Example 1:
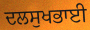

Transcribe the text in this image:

ਦਲਸੁਖਭਾਈ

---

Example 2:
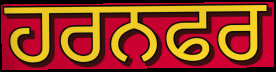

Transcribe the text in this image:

ਹਰਨਫਰ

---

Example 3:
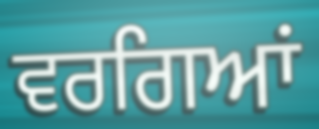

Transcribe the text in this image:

ਵਰਗਿਆਂ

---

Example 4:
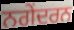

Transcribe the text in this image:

ਨਗੇਂਦਰਨ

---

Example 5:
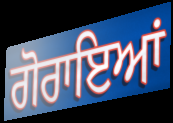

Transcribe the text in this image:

ਗੋਰਾਇਆਂ